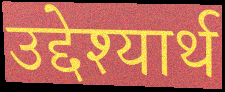
उद्देश्यार्थ